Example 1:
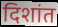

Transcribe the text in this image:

दिशांत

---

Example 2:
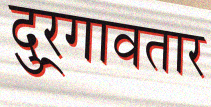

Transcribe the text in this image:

दुर्गावतार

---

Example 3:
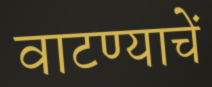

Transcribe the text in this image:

वाटण्याचें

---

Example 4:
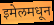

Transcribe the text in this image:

इमेलमधून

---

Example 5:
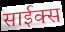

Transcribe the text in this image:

साईक्स